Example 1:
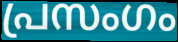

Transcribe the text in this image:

പ്രസംഗം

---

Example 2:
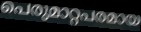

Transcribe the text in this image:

പെരുമാറ്റപരമായ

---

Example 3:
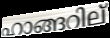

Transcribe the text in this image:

ഹാങ്ങറില്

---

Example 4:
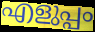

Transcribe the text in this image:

എളുപ്പം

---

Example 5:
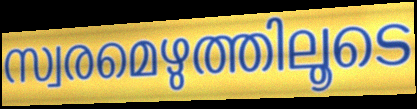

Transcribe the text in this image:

സ്വരമെഴുത്തിലൂടെ